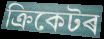
ক্ৰিকেটৰ